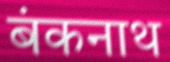
बंकनाथ